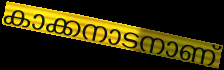
കാക്കനാടനാണ്